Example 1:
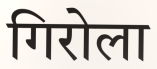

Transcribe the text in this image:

गिरोला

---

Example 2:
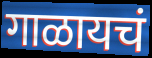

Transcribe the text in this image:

गाळायचं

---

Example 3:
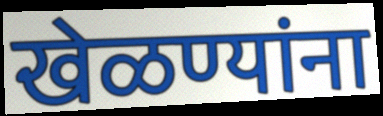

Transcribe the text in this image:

खेळण्यांना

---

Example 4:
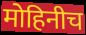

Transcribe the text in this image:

मोहिनीच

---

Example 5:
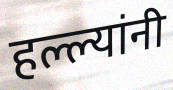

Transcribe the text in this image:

हल्ल्यांनी